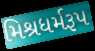
મિશ્રધર્મરૂપ